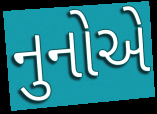
નુનોએ